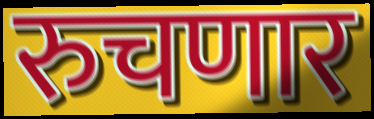
रुचणार